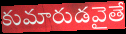
కుమారుడవైతే